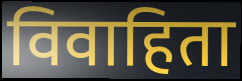
विवाहिता